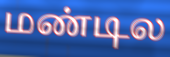
மண்டில